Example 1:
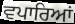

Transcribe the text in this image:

ਵਪਾਰਿਆਂ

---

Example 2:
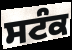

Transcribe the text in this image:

ਸਟੰਕ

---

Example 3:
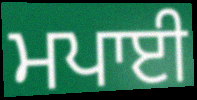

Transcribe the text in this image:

ਮਪਾਈ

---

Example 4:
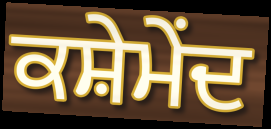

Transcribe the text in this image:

ਕਸ਼ੇਮੇਂਦ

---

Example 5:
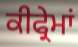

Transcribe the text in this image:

ਕੀਫ੍ਰੇਮਾਂ